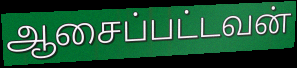
ஆசைப்பட்டவன்